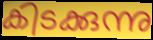
കിടക്കുന്നു